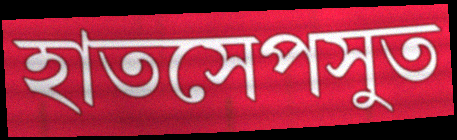
হাতসেপসুত